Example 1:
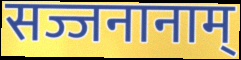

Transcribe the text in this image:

सज्जनानाम्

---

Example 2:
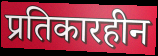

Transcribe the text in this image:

प्रतिकारहीन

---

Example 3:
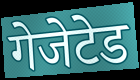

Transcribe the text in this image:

गेजेटेड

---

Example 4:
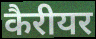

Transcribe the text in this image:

कैरीयर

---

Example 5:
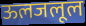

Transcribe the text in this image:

ऊलजलूल